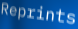
Reprints